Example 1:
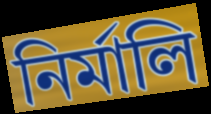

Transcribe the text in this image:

নিৰ্মালি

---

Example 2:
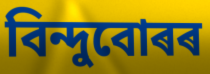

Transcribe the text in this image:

বিন্দুবোৰৰ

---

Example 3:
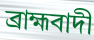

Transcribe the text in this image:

ব্ৰাহ্মবাদী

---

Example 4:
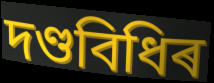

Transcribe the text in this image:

দণ্ডবিধিৰ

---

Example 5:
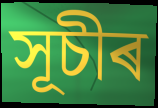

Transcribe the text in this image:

সূচীৰ